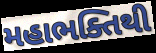
મહાભક્તિથી